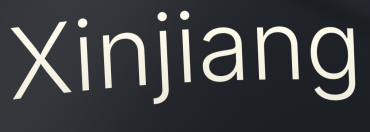
Xinjiang